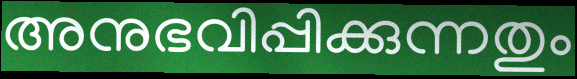
അനുഭവിപ്പിക്കുന്നതും